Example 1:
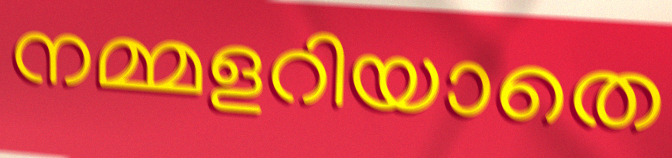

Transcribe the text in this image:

നമ്മളറിയാതെ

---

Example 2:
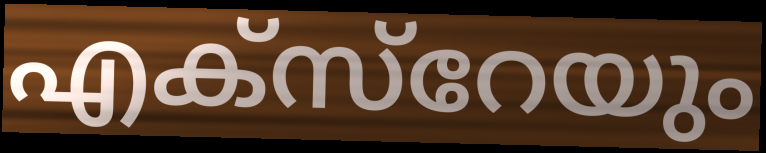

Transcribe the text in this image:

എക്സ്റേയും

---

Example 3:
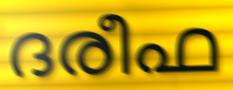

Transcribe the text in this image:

ദരീഫ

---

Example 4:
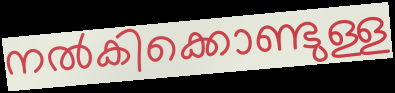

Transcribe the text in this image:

നൽകിക്കൊണ്ടുള്ള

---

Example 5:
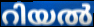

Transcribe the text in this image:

റിയൽ